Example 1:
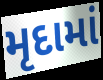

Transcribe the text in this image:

મૃદામાં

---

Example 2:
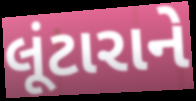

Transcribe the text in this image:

લૂંટારાને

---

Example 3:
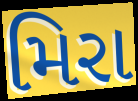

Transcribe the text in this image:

મિરા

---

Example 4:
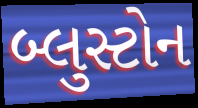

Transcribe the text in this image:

બ્લુસ્ટોન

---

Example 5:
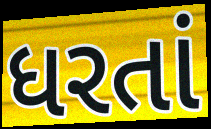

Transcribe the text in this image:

ધરતાં